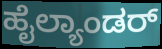
ಹೈಲ್ಯಾಂಡರ್